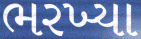
ભરખ્યા